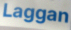
Laggan